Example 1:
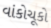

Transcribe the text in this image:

વાંકોચૂકો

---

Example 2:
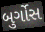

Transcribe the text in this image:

બુર્ગોસ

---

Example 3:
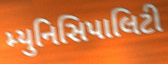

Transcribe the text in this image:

મ્યુનિસિપાલિટી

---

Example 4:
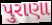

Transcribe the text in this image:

પુરાણા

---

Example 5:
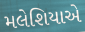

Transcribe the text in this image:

મલેશિયાએ